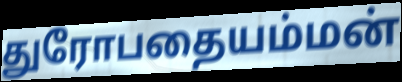
துரோபதையம்மன்